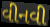
વીનવી